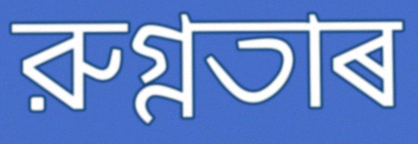
ৰুগ্নতাৰ